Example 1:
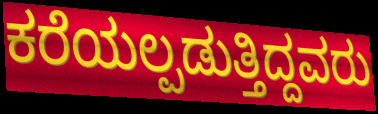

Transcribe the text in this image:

ಕರೆಯಲ್ಪಡುತ್ತಿದ್ದವರು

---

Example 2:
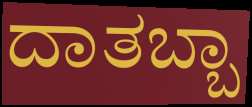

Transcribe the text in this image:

ದಾತಬ್ಬಾ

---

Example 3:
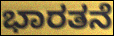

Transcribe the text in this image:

ಭಾರತನೆ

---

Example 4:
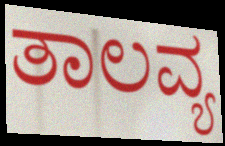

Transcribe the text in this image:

ತಾಲವ್ಯ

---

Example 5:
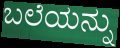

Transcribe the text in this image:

ಬಲೆಯನ್ನು